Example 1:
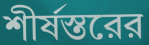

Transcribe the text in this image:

শীর্ষস্তরের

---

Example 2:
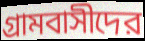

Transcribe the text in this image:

গ্রামবাসীদের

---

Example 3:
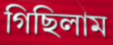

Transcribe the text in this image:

গিছিলাম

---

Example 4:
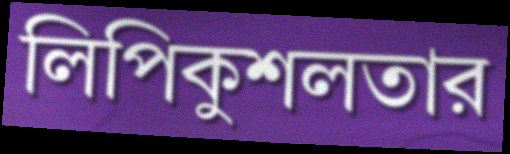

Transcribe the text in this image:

লিপিকুশলতার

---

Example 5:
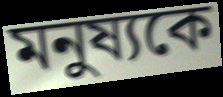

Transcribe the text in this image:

মনুষ্যকে